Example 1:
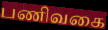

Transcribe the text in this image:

பணிவகை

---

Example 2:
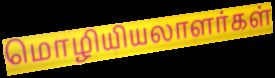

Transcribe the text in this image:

மொழியியலாளர்கள்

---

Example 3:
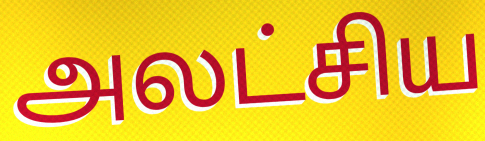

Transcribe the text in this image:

அலட்சிய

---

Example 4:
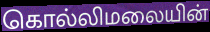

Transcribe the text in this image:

கொல்லிமலையின்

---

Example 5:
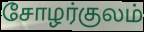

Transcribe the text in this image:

சோழர்குலம்